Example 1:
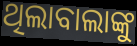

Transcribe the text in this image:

ଥିଲାବାଲାଙ୍କୁ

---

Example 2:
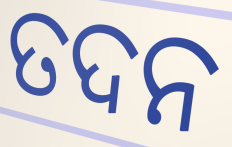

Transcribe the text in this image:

ତଦନ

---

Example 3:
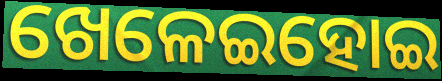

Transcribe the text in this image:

ଖେଳେଇହୋଇ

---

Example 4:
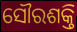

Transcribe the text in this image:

ସୌରଶକ୍ତି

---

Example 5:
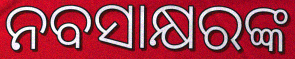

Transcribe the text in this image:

ନବସାକ୍ଷରଙ୍କ